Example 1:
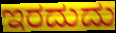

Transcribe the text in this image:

ಇರದುದು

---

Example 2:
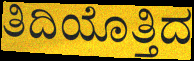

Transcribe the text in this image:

ತಿದಿಯೊತ್ತಿದ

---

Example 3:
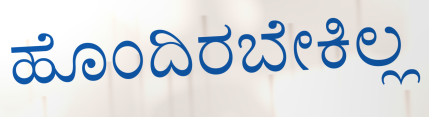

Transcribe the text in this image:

ಹೊಂದಿರಬೇಕಿಲ್ಲ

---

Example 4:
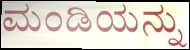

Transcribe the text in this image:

ಮಂಡಿಯನ್ನು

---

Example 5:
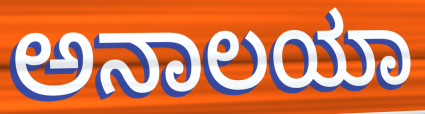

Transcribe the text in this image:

ಅನಾಲಯಾ